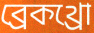
ব্রেকথ্রো